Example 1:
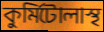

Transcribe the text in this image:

কুর্মিটোলাস্থ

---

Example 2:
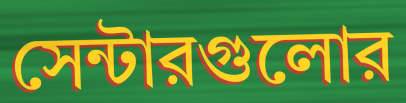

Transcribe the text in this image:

সেন্টারগুলোর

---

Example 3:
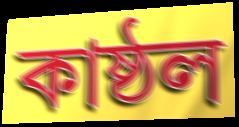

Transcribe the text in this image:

কাষ্ঠল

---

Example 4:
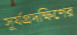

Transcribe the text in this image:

সূর্যপ্রদক্ষিণের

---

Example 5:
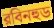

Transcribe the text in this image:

রবিনহুড